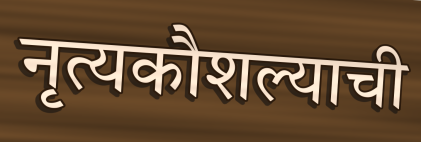
नृत्यकौशल्याची